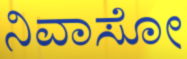
ನಿವಾಸೋ